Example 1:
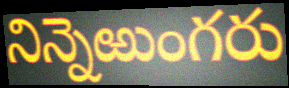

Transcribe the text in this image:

నిన్నెఱుంగరు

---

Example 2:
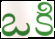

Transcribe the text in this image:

ఒకి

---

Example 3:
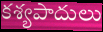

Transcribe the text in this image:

కశ్యపాదులు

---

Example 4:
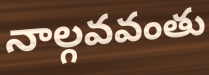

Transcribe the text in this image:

నాల్గవవంతు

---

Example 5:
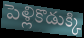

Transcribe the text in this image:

పెళ్లికొడుక్కి